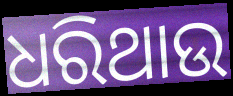
ଧରିଥାଉ